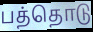
பத்தொடு